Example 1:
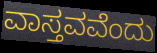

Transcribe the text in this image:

ವಾಸ್ತವವೆಂದು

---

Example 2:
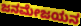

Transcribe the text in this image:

ಜನಮೇಜಯನ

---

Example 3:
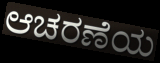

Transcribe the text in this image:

ಆಚರಣೆಯ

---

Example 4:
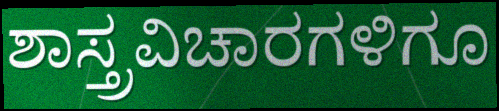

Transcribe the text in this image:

ಶಾಸ್ತ್ರವಿಚಾರಗಳಿಗೂ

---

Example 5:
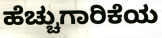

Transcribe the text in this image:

ಹೆಚ್ಚುಗಾರಿಕೆಯ